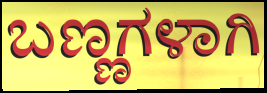
ಬಣ್ಣಗಳಾಗಿ